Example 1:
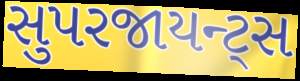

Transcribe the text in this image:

સુપરજાયન્ટ્સ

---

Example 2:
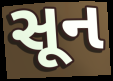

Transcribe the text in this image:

સૂન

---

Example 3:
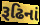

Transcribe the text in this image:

રૂઢિનાં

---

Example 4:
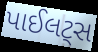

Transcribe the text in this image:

પાઈલટ્સ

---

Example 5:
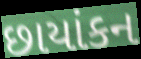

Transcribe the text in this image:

છાયાંકન